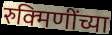
रुक्मिणींच्या